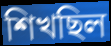
শিখছিল